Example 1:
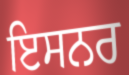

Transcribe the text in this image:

ਇਸਨਰ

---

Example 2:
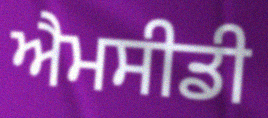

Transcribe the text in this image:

ਐਮਸੀਡੀ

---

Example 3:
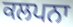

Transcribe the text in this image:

ਕਲਪਨਾ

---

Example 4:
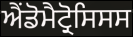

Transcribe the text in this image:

ਐਂਡੋਮੈਟ੍ਰੋਸਿਸਸ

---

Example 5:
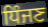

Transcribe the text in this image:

ਧਿੰਜਣ